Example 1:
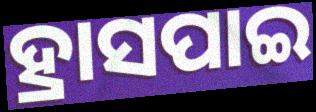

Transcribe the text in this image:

ହ୍ରାସପାଇ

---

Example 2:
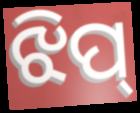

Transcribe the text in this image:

ଝିପ୍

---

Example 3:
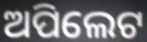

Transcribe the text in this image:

ଅପିଲେଟ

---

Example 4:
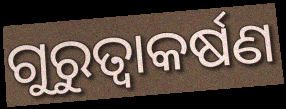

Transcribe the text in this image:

ଗୁରୁତ୍ଵାକର୍ଷଣ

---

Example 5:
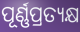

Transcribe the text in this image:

ପୂର୍ଣ୍ଣପ୍ରତ୍ୟକ୍ଷ